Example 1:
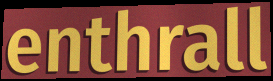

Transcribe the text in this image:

enthrall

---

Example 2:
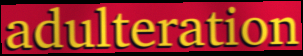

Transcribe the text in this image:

adulteration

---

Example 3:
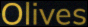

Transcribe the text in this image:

Olives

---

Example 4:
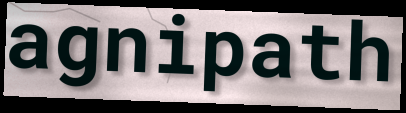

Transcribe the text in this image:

agnipath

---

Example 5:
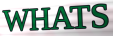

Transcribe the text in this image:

WHATS